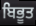
ਬਿਭੂਤ